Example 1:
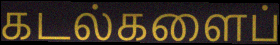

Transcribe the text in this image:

கடல்களைப்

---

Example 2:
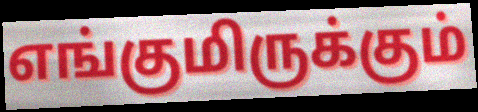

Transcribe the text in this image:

எங்குமிருக்கும்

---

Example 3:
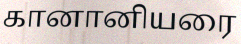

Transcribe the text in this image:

கானானியரை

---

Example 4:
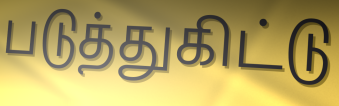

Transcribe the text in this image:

படுத்துகிட்டு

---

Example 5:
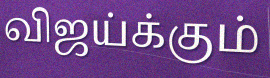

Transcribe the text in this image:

விஜய்க்கும்